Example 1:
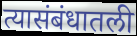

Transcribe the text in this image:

त्यासंबंधातली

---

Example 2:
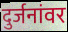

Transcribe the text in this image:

दुर्जनांवर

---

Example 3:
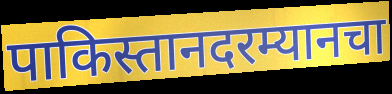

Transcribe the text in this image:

पाकिस्तानदरम्यानचा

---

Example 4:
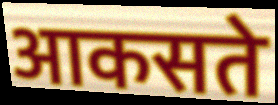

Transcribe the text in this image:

आकसते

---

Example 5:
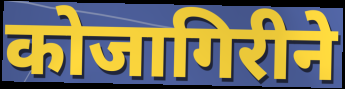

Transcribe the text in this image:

कोजागिरीने